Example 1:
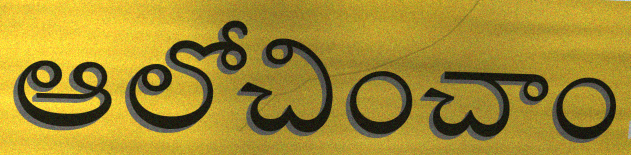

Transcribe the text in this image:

ఆలోచించాం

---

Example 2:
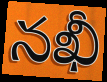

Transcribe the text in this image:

నఖీ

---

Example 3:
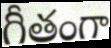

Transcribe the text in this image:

గీతంగా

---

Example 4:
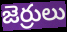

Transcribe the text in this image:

జెర్రులు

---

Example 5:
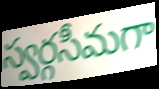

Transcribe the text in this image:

స్వర్గసీమగా